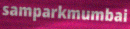
samparkmumbai